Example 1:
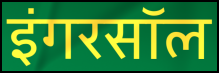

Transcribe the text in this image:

इंगरसॉल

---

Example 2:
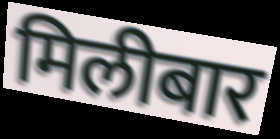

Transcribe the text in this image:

मिलीबार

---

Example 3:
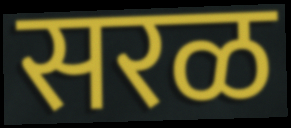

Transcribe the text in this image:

सरळ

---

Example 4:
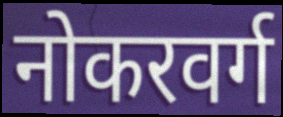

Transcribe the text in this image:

नोकरवर्ग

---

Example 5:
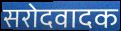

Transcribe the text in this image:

सरोदवादक